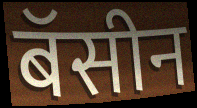
बॅसीन